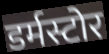
डर्मस्टोर